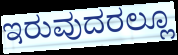
ಇರುವುದರಲ್ಲೂ